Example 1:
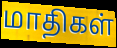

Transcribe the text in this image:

மாதிகள்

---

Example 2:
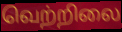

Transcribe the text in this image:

வெற்றிலை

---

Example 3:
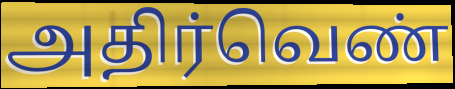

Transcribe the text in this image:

அதிர்வெண்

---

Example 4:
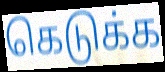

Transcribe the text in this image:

கெடுக்க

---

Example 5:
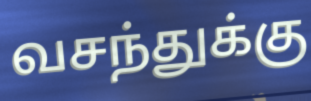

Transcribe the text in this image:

வசந்துக்கு